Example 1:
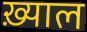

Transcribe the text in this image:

ख़्याल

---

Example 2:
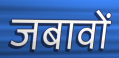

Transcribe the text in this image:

जबावों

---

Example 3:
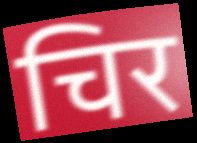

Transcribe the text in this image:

चिर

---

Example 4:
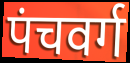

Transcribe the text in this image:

पंचवर्ग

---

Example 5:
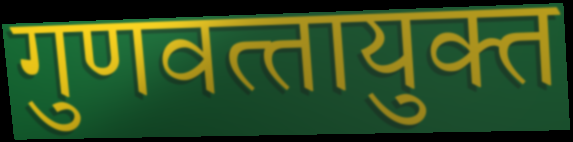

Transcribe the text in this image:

गुणवत्‍तायुक्‍त